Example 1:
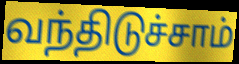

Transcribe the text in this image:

வந்திடுச்சாம்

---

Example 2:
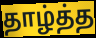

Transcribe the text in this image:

தாழ்த்த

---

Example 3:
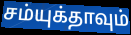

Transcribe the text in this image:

சம்யுக்தாவும்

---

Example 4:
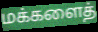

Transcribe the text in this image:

மக்களைத்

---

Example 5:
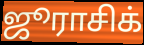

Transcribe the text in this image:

ஜூராசிக்